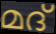
മദ്